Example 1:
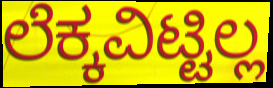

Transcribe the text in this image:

ಲೆಕ್ಕವಿಟ್ಟಿಲ್ಲ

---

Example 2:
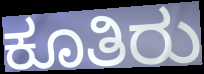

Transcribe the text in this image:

ಕೂತಿರು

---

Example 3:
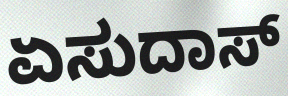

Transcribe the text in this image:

ಏಸುದಾಸ್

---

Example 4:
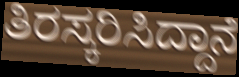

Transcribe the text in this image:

ತಿರಸ್ಕರಿಸಿದ್ದಾನೆ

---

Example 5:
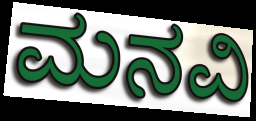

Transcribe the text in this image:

ಮನವಿ